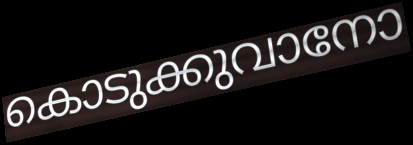
കൊടുക്കുവാനോ